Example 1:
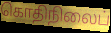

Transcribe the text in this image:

கொதிநிலைப்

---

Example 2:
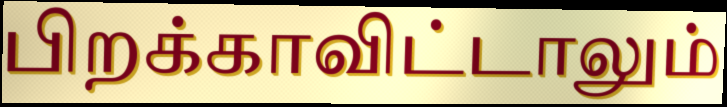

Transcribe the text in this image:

பிறக்காவிட்டாலும்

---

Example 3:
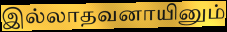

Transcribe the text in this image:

இல்லாதவனாயினும்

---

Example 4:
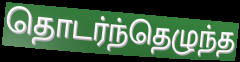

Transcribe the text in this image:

தொடர்ந்தெழுந்த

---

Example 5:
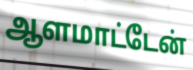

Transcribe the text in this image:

ஆளமாட்டேன்